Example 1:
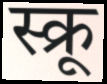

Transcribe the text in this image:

स्क्रू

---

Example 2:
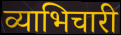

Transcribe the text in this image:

व्याभिचारी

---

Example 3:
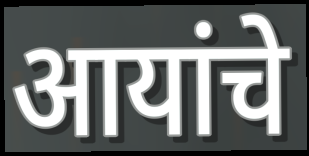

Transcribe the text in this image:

आयांचे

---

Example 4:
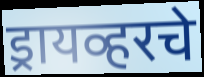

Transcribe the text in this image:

ड्रायव्हरचे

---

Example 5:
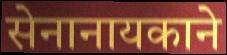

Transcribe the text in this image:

सेनानायकाने